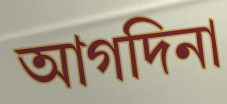
আগদিনা